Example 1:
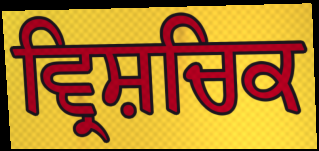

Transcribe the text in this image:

ਵ੍ਰਿਸ਼ਚਿਕ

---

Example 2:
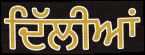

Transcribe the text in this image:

ਦਿੱਲੀਆਂ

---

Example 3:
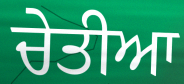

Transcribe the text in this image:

ਚੇਤੀਆ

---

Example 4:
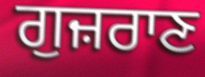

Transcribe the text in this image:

ਗੁਜ਼ਰਾਣ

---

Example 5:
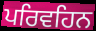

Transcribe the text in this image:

ਪਰਿਵਹਿਨ